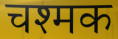
चश्मक